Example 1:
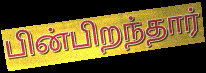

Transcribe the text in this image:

பின்பிறந்தார்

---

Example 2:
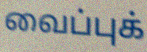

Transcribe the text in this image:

வைப்புக்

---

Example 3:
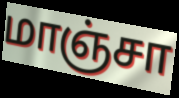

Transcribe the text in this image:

மாஞ்சா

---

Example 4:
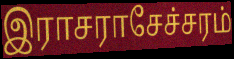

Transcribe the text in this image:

இராசராசேச்சரம்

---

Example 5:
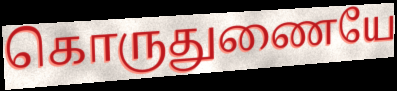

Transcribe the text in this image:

கொருதுணையே